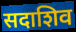
सदाशिव